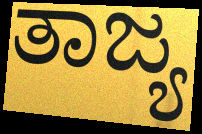
ತಾಜ್ಯ